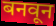
बनवून